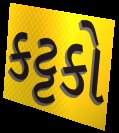
કટ્ટકો